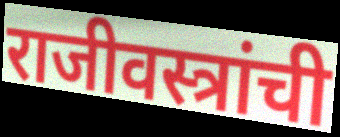
राजीवस्त्रांची